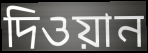
দিওয়ান